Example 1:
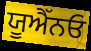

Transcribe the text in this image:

ਯੂਐੱਨਓ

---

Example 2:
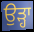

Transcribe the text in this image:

ਉੜ੍ਹਾ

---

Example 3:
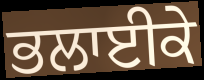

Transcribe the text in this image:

ਭਲਾਈਕੇ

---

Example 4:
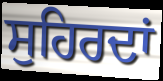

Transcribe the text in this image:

ਸੁਹਿਰਦਾਂ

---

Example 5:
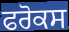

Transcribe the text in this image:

ਫਰੋਕਸ